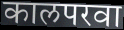
कालपरवा